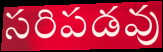
సరిపడవు